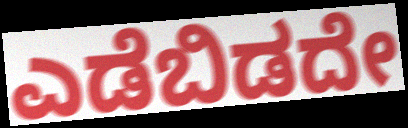
ಎಡೆಬಿಡದೇ